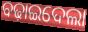
ବଢ଼ାଇଦେଲା